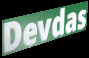
Devdas